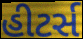
હીટર્સ